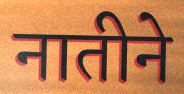
नातीने